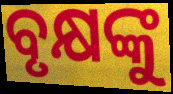
ବୃକ୍ଷଙ୍କୁ